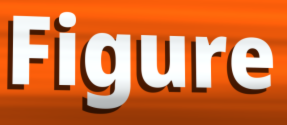
Figure